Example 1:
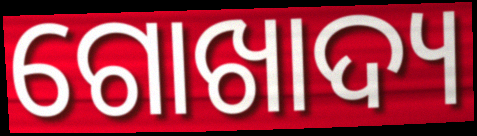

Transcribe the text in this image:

ଗୋଖାଦ୍ୟ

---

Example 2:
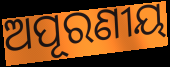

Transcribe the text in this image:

ଅପୂରଣୀୟ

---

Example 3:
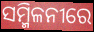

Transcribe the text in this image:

ସମ୍ମିଳନୀରେ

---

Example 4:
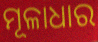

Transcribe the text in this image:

ମୂଳାଧାର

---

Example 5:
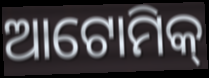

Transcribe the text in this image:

ଆଟୋମିକ୍